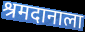
श्रमदानाला